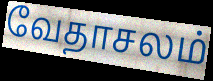
வேதாசலம்